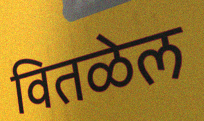
वितळेल